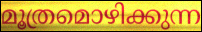
മൂത്രമൊഴിക്കുന്ന